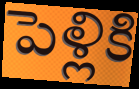
పెళ్లికి